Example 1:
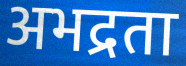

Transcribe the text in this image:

अभद्रता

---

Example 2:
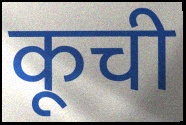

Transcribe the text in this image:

कूची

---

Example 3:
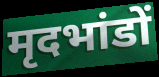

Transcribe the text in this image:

मृदभांडों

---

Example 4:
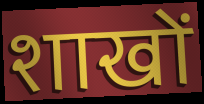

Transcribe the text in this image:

शाखों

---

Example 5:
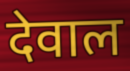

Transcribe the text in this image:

देवाल